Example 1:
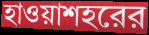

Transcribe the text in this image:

হাওয়াশহরের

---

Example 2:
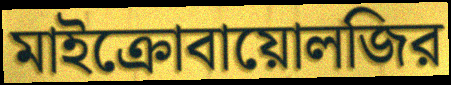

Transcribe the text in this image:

মাইক্রোবায়োলজির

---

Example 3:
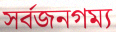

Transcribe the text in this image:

সর্বজনগম্য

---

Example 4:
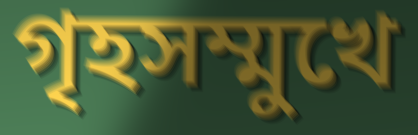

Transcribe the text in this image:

গৃহসম্মুখে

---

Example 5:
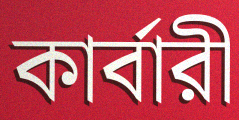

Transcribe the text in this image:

কার্বারী